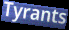
Tyrants